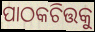
ପାଠକଚିତ୍ତକୁ